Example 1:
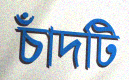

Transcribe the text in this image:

চাঁদটি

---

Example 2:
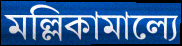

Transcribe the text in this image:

মল্লিকামাল্যে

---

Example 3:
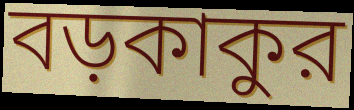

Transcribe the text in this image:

বড়কাকুর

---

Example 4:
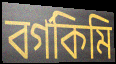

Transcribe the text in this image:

বর্গকিমি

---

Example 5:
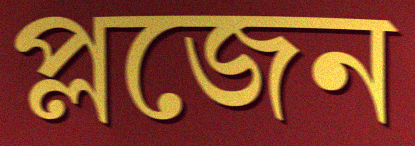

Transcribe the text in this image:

প্লজেন